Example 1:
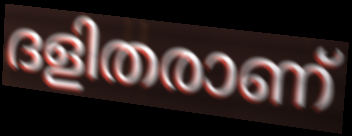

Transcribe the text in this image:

ദളിതരാണ്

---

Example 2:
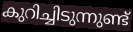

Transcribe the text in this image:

കുറിച്ചിടുന്നുണ്ട്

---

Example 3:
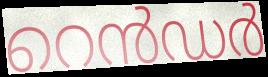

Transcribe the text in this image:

റെൻഡർ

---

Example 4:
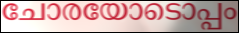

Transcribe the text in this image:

ചോരയോടൊപ്പം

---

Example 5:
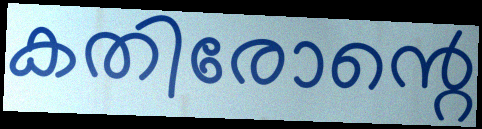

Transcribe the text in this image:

കതിരോന്റെ